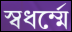
স্বধর্ম্মে